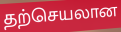
தற்செயலான